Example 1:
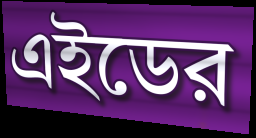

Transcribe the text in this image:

এইডের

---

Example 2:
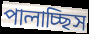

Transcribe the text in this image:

পালাচ্ছিস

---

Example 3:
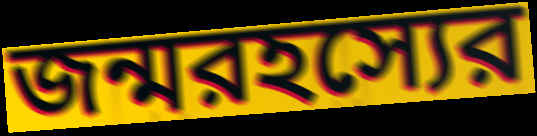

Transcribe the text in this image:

জন্মরহস্যের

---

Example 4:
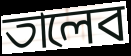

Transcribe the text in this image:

তালেব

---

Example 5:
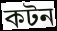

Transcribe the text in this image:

কটন